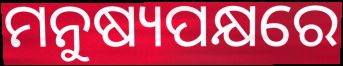
ମନୁଷ୍ୟପକ୍ଷରେ